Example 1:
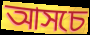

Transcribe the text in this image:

আসচে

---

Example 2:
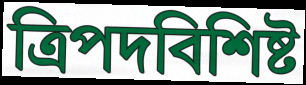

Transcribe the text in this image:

ত্রিপদবিশিষ্ট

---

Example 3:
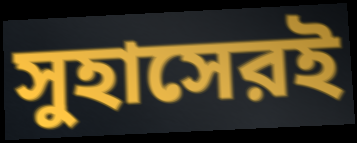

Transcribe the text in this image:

সুহাসেরই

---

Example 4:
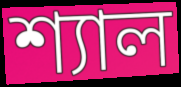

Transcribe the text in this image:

শ্যাল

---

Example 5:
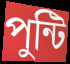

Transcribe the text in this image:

পুন্টি